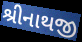
શ્રીનાથજી